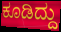
ಕೂಡಿದ್ದು